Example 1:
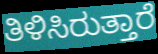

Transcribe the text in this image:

ತಿಳಿಸಿರುತ್ತಾರೆ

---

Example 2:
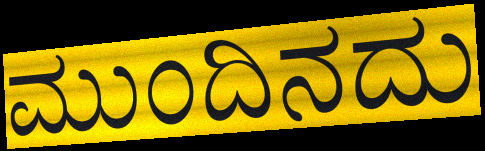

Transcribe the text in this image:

ಮುಂದಿನದು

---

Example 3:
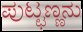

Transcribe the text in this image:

ಪುಟ್ಟಣ್ಣನು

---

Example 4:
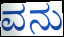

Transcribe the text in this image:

ವನು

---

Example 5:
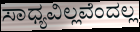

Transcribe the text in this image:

ಸಾಧ್ಯವಿಲ್ಲವೆಂದಲ್ಲ